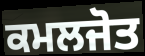
ਕਮਲਜੋਤ